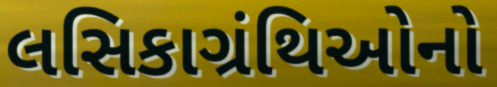
લસિકાગ્રંથિઓનો